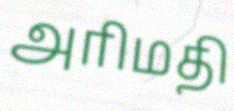
அரிமதி